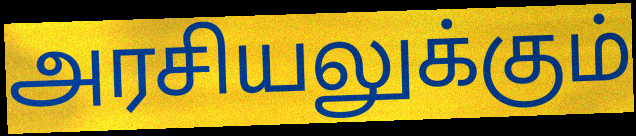
அரசியலுக்கும்